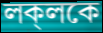
লক্‌লকে